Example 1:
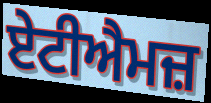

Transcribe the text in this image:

ਏਟੀਐਮਜ਼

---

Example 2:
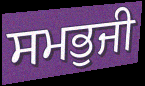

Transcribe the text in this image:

ਸਮਭੁਜੀ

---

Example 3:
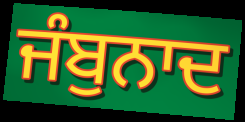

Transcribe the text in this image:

ਜੰਬੁਨਾਦ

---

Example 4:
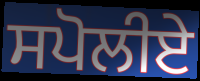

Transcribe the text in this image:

ਸਪੋਲੀਏ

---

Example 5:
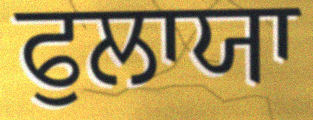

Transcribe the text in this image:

ਫੁਲਾਯਾ